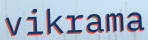
vikrama